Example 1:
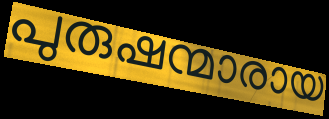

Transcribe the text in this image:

പുരുഷന്മാരായ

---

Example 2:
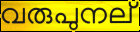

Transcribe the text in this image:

വരുപുനല്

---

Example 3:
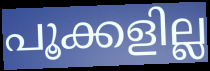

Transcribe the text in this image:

പൂക്കളില്ല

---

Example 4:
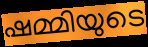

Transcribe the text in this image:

ഷമ്മിയുടെ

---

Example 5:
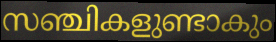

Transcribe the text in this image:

സഞ്ചികളുണ്ടാകും